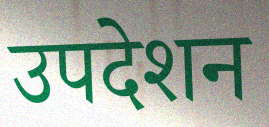
उपदेशन